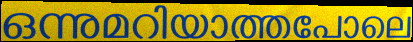
ഒന്നുമറിയാത്തപോലെ